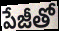
పేజీతో